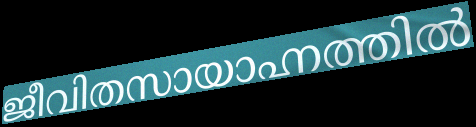
ജീവിതസായാഹ്നത്തിൽ